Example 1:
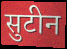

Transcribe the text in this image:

सुटीन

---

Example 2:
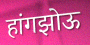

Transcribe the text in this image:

हांगझोऊ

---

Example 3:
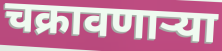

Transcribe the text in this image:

चक्रावणाऱ्या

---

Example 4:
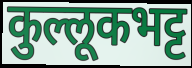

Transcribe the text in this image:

कुल्लूकभट्ट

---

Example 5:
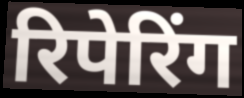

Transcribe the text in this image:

रिपेरिंग